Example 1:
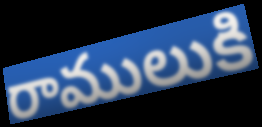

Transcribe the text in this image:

రాములుకి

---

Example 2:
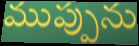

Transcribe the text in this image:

ముప్పును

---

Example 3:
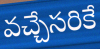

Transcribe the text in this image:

వచ్చేసరికే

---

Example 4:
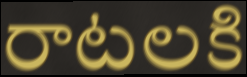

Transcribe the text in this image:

రాటలకి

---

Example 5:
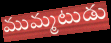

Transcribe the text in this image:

ముమ్మటుడు